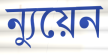
ন্যুয়েন